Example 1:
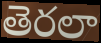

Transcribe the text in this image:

తెరలా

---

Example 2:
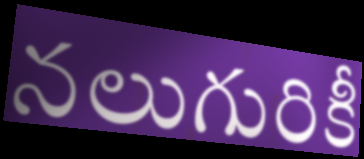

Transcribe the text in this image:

నలుగురికీ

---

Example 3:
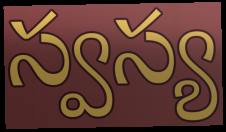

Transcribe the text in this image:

స్వస్య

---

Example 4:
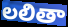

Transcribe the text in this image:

లలితా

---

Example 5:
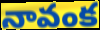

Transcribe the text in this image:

నావంక